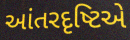
આંતરદૃષ્ટિએ